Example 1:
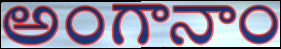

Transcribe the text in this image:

అంగానాం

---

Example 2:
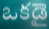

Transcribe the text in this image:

ఒకడై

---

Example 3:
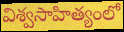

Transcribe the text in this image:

విశ్వసాహిత్యంలో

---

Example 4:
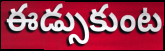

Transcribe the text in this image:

ఈడ్సుకుంట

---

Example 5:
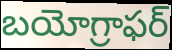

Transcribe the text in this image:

బయోగ్రాఫర్